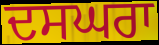
ਦਸਘਰਾ